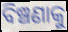
ବିଞ୍ଚଣାକୁ